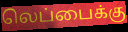
லெப்பைக்கு